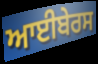
ਆਈਬੇਰਸ